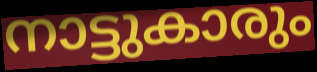
നാട്ടുകാരും